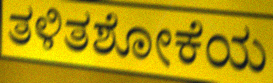
ತಳಿತಶೋಕೆಯ